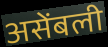
असेंबली